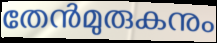
തേൻമുരുകനും